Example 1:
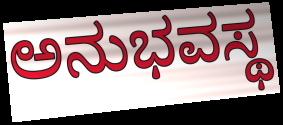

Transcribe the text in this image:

ಅನುಭವಸ್ಥ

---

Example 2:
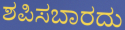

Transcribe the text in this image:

ಶಪಿಸಬಾರದು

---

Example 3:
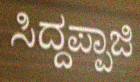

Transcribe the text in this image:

ಸಿದ್ದಪ್ಪಾಜಿ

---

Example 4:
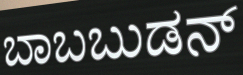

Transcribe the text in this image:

ಬಾಬಬುಡನ್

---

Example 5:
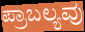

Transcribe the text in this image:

ಪ್ರಾಬಲ್ಯವು